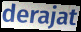
derajat